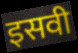
इसवी